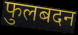
फुलबदन